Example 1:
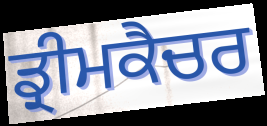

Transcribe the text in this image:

ਡ੍ਰੀਮਕੈਚਰ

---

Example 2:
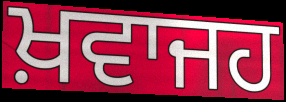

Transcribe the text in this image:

ਖ਼ਵਾਜਹ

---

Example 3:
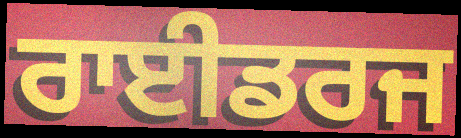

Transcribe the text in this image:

ਰਾਈਡਰਜ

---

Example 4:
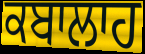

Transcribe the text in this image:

ਕਬਾਲਾਹ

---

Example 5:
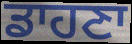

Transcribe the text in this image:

ਡਾਹਣਾ